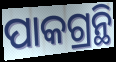
ପାକଗ୍ରନ୍ଥି